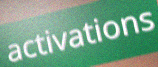
activations